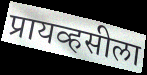
प्रायव्हसीला